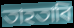
তাহতাবি